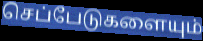
செப்பேடுகளையும்